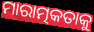
ମାରାତ୍ମକତାକୁ